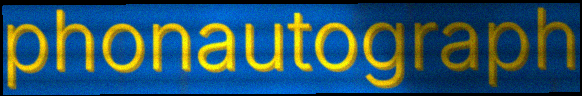
phonautograph